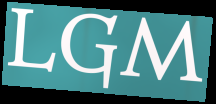
LGM